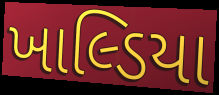
ખાલ્ડિયા